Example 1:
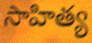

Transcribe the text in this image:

సాహిత్య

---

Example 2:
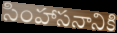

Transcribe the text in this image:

సింహాసనానికి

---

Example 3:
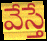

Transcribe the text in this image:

వేస్తే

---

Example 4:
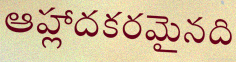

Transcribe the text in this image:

ఆహ్లాదకరమైనది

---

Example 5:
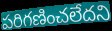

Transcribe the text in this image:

పరిగణించలేదని